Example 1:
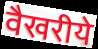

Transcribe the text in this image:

वैखरीये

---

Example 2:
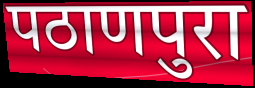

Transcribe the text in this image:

पठाणपुरा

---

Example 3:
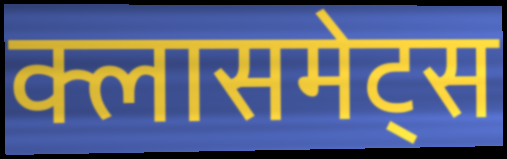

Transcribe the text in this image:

क्लासमेट्स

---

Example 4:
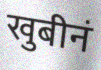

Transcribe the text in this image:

खुबीनं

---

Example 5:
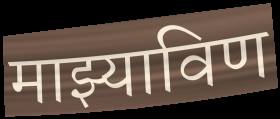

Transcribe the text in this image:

माझ्याविण